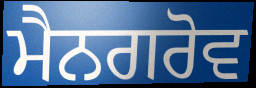
ਮੈਨਗਰੋਵ